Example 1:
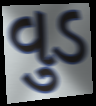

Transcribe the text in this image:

વુડ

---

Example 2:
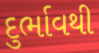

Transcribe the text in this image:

દુર્ભાવથી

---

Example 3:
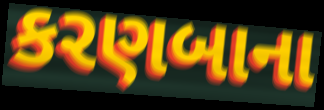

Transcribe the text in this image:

કરણબાના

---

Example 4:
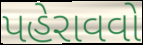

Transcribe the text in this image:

પહેરાવવો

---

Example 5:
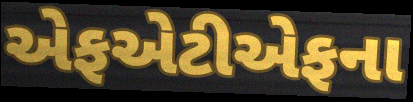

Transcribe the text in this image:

એફએટીએફના